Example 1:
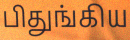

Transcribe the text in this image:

பிதுங்கிய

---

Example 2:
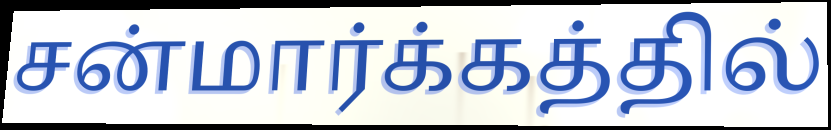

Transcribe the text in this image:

சன்மார்க்கத்தில்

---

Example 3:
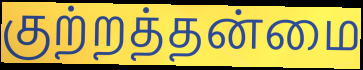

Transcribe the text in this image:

குற்றத்தன்மை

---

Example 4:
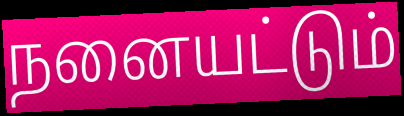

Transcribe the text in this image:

நனையட்டும்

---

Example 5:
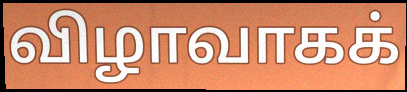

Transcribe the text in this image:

விழாவாகக்